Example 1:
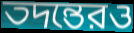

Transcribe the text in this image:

তদন্তেরও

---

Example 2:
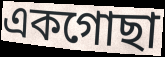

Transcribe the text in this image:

একগোছা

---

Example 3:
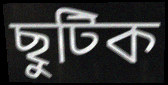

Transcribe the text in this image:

ছুট্কি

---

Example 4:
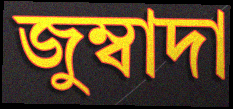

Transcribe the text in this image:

জুম্বাদা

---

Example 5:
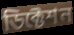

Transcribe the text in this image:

ডিক্টেশন